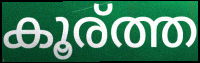
കൂര്ത്ത